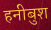
हनीबुश